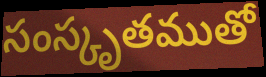
సంస్కృతముతో